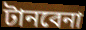
টানবেনা